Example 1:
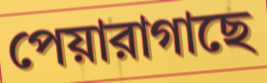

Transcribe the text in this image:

পেয়ারাগাছে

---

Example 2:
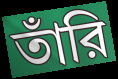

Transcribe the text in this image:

তাঁরি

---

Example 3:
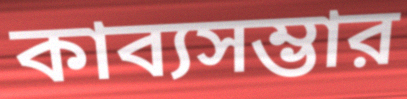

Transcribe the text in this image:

কাব্যসম্ভার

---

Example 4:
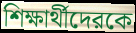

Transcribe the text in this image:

শিক্ষার্থীদেরকে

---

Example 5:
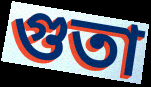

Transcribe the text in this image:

গুতা